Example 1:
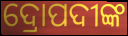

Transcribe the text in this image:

ଦ୍ରୋପଦୀଙ୍କ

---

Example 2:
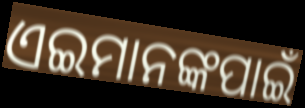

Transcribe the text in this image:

ଏଇମାନଙ୍କପାଇଁ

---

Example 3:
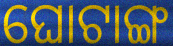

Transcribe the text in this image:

ଘୋଟାଙ୍ଗ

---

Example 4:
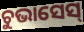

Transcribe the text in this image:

ଚୁଭାସେସ୍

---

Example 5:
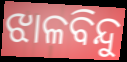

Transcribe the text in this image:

ଝାଳବିନ୍ଦୁ